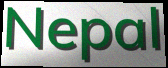
Nepal